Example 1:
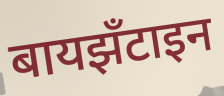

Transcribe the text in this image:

बायझँटाइन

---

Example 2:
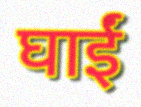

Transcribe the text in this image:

घाईं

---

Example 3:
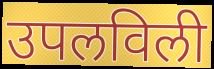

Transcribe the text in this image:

उपलविली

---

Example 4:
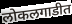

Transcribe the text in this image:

लोकलगाडीत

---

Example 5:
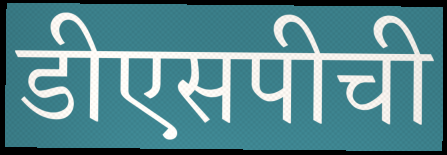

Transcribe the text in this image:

डीएसपीची